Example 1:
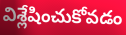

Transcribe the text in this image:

విశ్లేషించుకోవడం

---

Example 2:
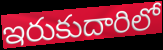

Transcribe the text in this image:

ఇరుకుదారిలో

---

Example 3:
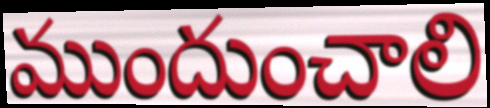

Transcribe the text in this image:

ముందుంచాలి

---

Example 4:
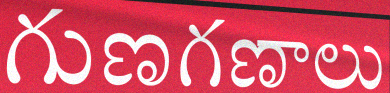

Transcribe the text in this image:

గుణగణాలు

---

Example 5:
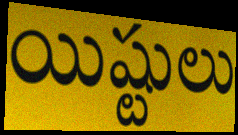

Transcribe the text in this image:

యిష్టులు